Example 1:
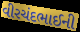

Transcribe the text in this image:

વીરચંદભાઈની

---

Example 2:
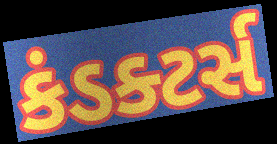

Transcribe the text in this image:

કંડક્ટર્સ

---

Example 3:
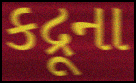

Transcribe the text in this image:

કદ્રૂના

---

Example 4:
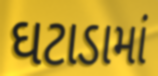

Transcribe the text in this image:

ઘટાડામાં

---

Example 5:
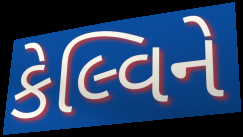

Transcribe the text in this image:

કેલ્વિને